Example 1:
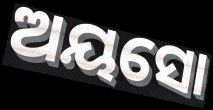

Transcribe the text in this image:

ଅୟସୋ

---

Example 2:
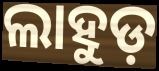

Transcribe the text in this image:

ଲାହୁଡ଼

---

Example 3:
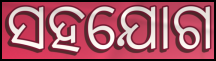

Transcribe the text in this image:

ସହଯୋଗ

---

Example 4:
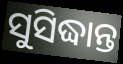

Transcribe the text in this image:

ସୁସିଦ୍ଧାନ୍ତ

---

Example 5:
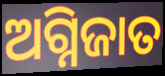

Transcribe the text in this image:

ଅଗ୍ନିଜାତ